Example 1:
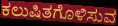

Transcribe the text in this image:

ಕಲುಷಿತಗೊಳಿಸುವ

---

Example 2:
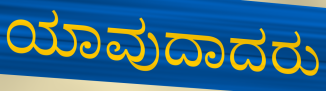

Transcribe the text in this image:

ಯಾವುದಾದರು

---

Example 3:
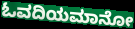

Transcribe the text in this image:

ಓವದಿಯಮಾನೋ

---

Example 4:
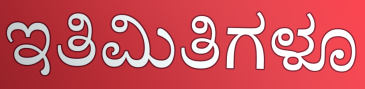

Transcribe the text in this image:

ಇತಿಮಿತಿಗಳೂ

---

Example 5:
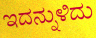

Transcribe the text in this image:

ಇದನ್ನುಳಿದು